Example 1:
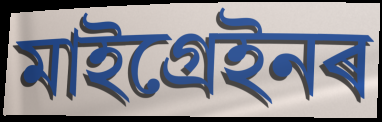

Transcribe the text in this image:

মাইগ্ৰেইনৰ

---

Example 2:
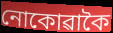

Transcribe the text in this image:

নোকোৱাকৈ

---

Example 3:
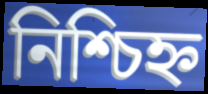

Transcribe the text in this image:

নিশ্চিহ্ন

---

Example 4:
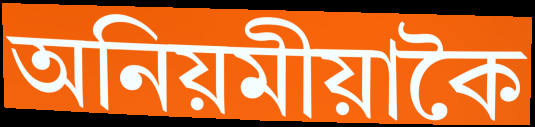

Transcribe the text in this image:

অনিয়মীয়াকৈ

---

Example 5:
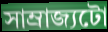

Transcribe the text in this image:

সাম্ৰাজ্যটো